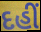
દહીં